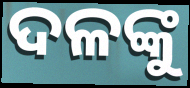
ଦଳଙ୍କୁ